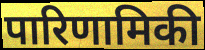
पारिणामिकी